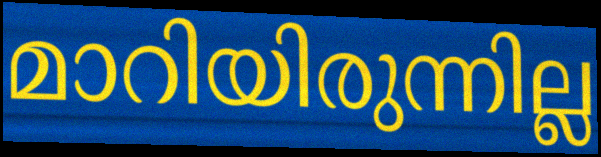
മാറിയിരുന്നില്ല